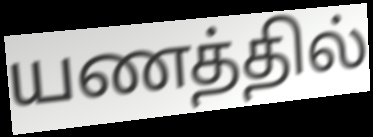
யணத்தில்